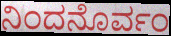
ನಿಂದನೊರ್ವಂ